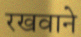
रखवाने